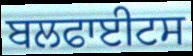
ਬਲਫਾਈਟਸ